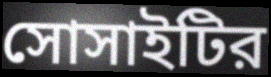
সোসাইটির